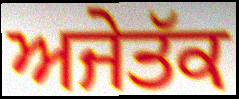
ਅਜੇਤੱਕ